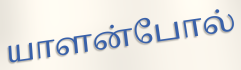
யாளன்போல்